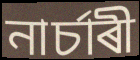
নাৰ্চাৰী